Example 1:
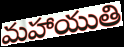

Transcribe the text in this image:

మహాయుతి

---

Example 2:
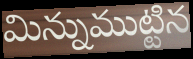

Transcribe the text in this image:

మిన్నుముట్టిన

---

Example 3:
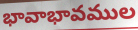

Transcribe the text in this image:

భావాభావముల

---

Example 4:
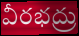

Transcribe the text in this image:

వీరభద్రు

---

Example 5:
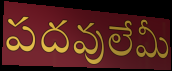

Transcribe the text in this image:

పదవులేమీ